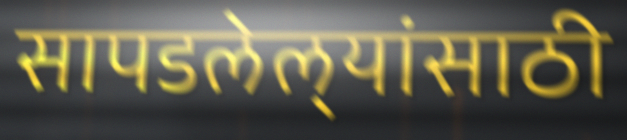
सापडलेल्यांसाठी